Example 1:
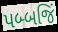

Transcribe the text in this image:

પબ્બજિં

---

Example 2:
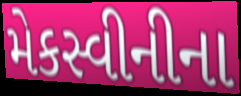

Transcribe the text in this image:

મેકસ્વીનીના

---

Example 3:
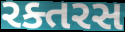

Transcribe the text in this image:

રક્તરસ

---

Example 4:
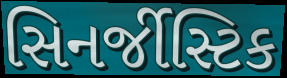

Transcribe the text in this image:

સિનર્જીસ્ટિક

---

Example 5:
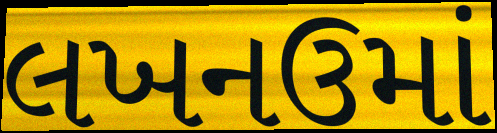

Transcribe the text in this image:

લખનઉમાં